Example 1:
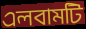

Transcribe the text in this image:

এলবামটি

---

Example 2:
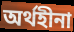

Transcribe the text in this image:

অর্থহীনা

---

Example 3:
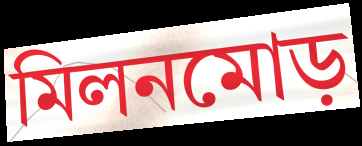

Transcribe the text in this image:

মিলনমোড়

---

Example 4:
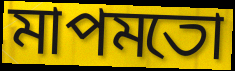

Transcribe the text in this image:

মাপমতো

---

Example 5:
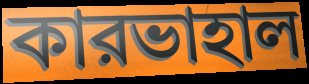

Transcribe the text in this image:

কারভাহাল